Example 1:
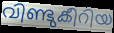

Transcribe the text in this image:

വിണ്ടുകീറിയ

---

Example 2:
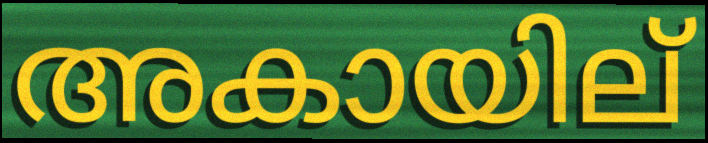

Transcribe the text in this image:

അകായില്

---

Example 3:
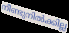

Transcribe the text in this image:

നീണ്ടുനിൽക്കില്ല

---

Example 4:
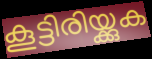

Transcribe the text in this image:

കൂട്ടിരിയ്ക്കുക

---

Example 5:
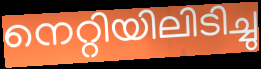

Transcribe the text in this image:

നെറ്റിയിലിടിച്ചു